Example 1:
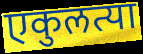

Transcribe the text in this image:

एकुलत्या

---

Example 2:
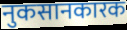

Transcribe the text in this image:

नुकसानकारक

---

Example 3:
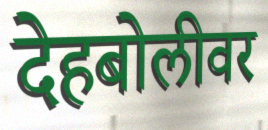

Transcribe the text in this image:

देहबोलीवर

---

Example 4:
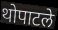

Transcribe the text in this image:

थोपाटले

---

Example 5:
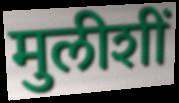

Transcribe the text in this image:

मुलीशीं